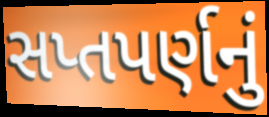
સપ્તપર્ણનું